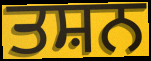
ਤਸ਼ਨ